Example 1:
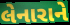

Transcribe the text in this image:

લેનારાને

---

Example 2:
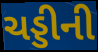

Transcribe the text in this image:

ચડ્ડીની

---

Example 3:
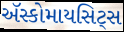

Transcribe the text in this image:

ઍસ્કોમાયસિટ્સ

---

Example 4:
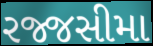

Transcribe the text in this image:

રજ્જસીમા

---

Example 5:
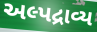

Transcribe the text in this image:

અલ્પદ્રાવ્ય